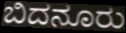
ಬಿದನೂರು